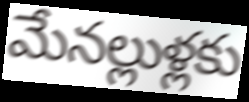
మేనల్లుళ్లకు